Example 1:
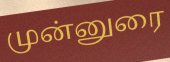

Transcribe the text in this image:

முன்னுரை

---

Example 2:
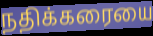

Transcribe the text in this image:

நதிக்கரையை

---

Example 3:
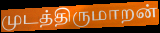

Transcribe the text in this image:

முடத்திருமாறன்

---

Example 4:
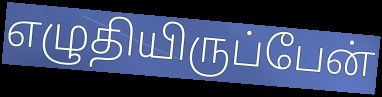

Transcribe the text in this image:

எழுதியிருப்பேன்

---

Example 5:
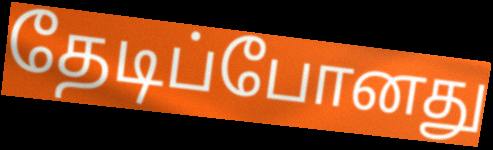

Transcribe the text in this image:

தேடிப்போனது